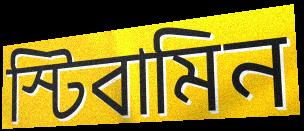
স্টিবামিন